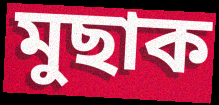
মুছাক